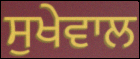
ਸੁਖੇਵਾਲ